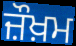
ਜ਼ੌਖ਼ਮ